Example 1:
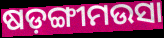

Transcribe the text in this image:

ଷଡ଼ଙ୍ଗୀମଉସା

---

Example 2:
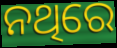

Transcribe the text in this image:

ନଥିରେ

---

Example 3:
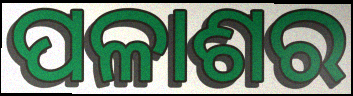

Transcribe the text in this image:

ପଳାଶର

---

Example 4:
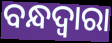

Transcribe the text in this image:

ବନ୍ଧଦ୍ବାରା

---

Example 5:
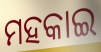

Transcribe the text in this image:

ମହକାଇ